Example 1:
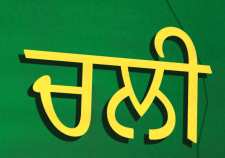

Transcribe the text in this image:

ਚਲੀ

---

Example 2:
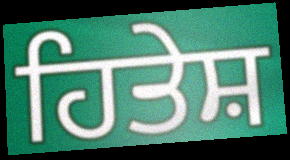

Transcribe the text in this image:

ਹਿਤੇਸ਼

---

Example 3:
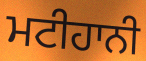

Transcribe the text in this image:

ਮਟੀਹਾਨੀ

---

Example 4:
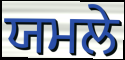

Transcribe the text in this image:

ਯਮਲੇ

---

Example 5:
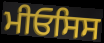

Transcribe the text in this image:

ਮੀਓਸਿਸ